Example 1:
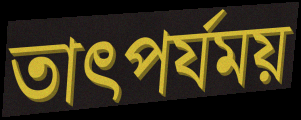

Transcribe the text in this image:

তাৎপর্যময়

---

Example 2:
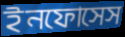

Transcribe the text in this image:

ইনফোসেস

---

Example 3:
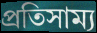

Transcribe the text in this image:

প্রতিসাম্য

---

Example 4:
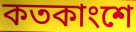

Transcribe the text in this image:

কতকাংশে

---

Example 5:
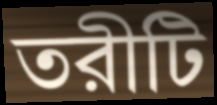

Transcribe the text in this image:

তরীটি